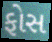
ફોસ